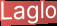
Laglo